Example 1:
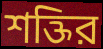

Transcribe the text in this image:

শক্তির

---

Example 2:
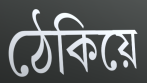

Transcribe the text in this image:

ঠেকিয়ে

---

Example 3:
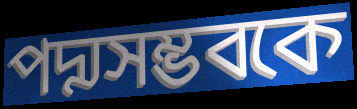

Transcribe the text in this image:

পদ্মসম্ভবকে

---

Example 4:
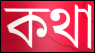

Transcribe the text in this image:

কথা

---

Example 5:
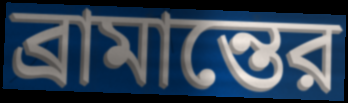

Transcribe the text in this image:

ব্রামান্তের